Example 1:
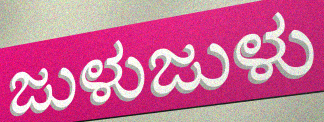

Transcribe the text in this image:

ಜುಳುಜುಳು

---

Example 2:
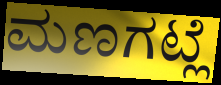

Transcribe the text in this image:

ಮಣಗಟ್ಲೆ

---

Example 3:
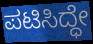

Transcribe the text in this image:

ಪಟಿಸಿದ್ಧೇ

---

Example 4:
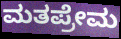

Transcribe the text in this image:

ಮತಪ್ರೇಮ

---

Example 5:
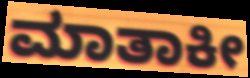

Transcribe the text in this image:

ಮಾತಾಕೀ